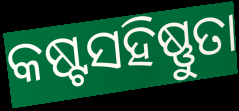
କଷ୍ଟସହିଷ୍ଣୁତା